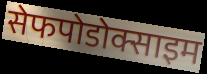
सेफपोडोक्साइम